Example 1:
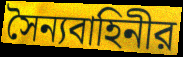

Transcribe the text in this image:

সৈন্যবাহিনীর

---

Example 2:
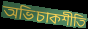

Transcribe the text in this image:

অভিচাকশীতি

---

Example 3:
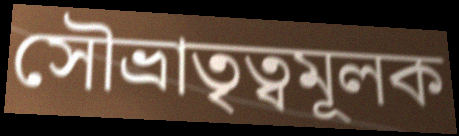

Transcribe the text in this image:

সৌভ্রাতৃত্বমূলক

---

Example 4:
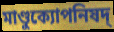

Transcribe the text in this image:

মাণ্ডুক্যোপনিষদ্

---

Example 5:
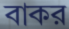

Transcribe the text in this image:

বাকর